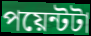
পয়েন্টটা